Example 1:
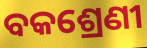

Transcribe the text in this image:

ବକଶ୍ରେଣୀ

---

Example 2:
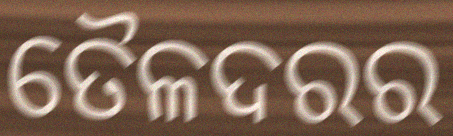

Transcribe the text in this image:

ତୈଳଦରର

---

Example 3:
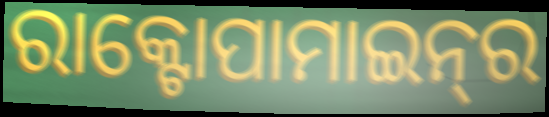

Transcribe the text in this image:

ରାକ୍ଟୋପାମାଇନ୍‌ର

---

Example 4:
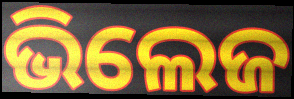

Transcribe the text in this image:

ଭିଲେଜ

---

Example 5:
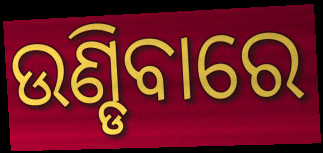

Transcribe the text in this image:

ଉଣ୍ଡିବାରେ